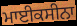
ਮਾਈਕਸੀਨਾ